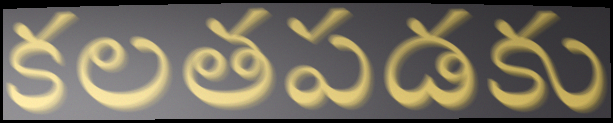
కలతపడకు